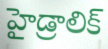
హైడ్రాలిక్